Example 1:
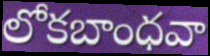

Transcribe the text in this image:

లోకబాంధవా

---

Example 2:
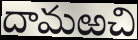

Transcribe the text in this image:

దామఱచి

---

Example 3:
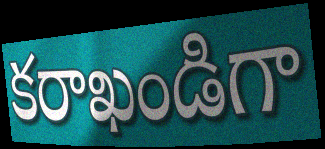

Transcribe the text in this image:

కరాఖండిగా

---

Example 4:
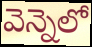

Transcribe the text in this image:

వెన్నెలో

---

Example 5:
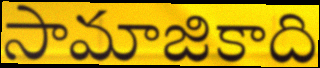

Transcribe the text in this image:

సామాజికాది